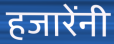
हजारेंनी